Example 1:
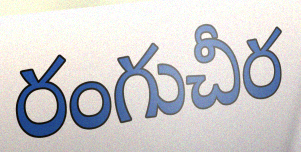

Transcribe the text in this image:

రంగుచీర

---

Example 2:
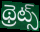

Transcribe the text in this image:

థ్రెట్స్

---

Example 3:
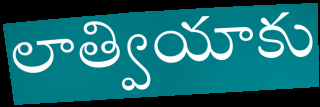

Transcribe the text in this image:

లాత్వియాకు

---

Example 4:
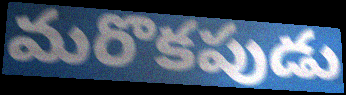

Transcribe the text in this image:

మరొకపుడు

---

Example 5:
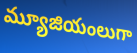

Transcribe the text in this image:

మ్యూజియంలుగా